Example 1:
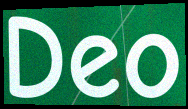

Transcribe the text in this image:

Deo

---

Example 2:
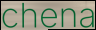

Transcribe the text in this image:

chena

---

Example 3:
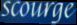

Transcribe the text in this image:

scourge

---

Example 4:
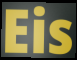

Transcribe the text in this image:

Eis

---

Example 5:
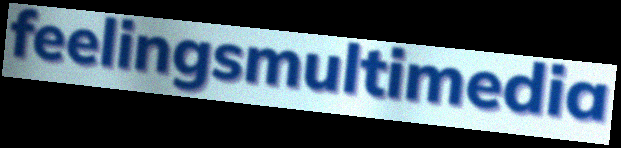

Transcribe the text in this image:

feelingsmultimedia